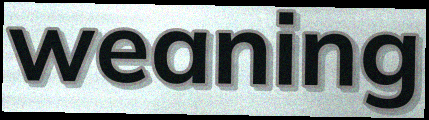
weaning